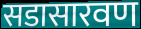
सडासारवण